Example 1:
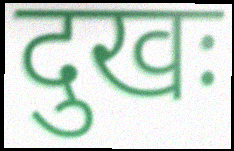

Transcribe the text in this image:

दुखः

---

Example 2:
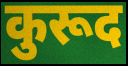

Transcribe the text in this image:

कुरूद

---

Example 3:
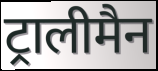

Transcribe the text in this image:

ट्रालीमैन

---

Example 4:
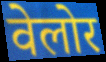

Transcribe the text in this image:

वेलोर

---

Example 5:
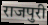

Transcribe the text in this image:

राजपुरी